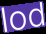
lod